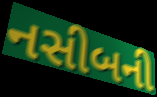
નસીબની